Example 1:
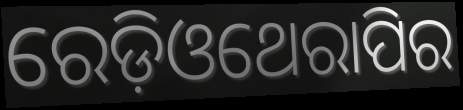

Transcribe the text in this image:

ରେଡ଼ିଓଥେରାପିର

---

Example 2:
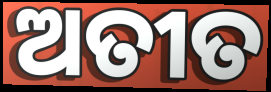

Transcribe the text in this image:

ଅତୀତ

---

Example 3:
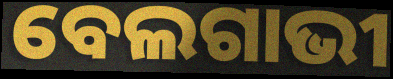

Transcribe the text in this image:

ବେଲଗାଭୀ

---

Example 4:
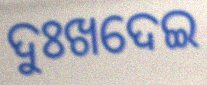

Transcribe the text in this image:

ଦୁଃଖଦେଇ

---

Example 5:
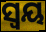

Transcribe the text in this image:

ସ୍ବୟ